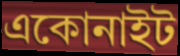
একোনাইট